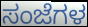
ಸಂಜೆಗಳ